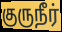
குருநீர்